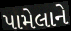
પામેલાને